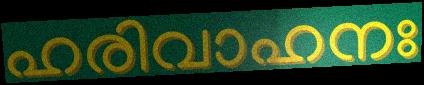
ഹരിവാഹനഃ